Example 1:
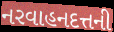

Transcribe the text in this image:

નરવાહનદત્તની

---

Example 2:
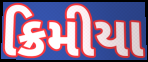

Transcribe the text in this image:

ક્રિમીયા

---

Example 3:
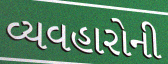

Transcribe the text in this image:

વ્યવહારોની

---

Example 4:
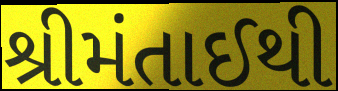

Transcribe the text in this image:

શ્રીમંતાઈથી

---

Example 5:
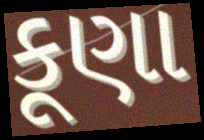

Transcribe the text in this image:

કૂણા